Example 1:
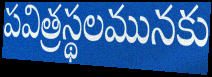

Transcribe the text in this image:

పవిత్రస్థలమునకు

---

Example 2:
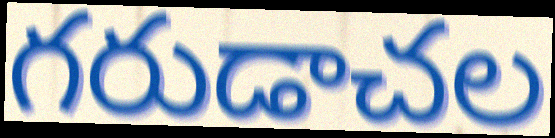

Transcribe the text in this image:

గరుడాచల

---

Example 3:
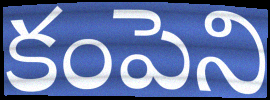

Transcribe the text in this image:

కంపెని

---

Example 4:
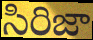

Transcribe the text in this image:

సిరిజా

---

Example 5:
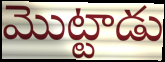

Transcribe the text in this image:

మొట్టాడు